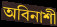
অবিনাশী